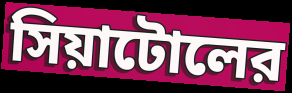
সিয়াটোলের